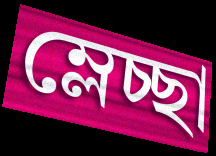
ম্লেচ্ছা